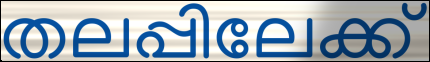
തലപ്പിലേക്ക്